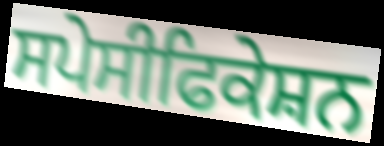
ਸਪੇਸੀਫਿਕੇਸ਼ਨ